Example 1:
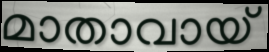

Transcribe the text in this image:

മാതാവായ്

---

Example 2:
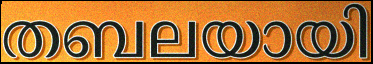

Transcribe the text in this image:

തബലയായി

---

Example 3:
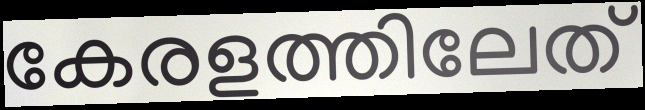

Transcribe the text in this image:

കേരളത്തിലേത്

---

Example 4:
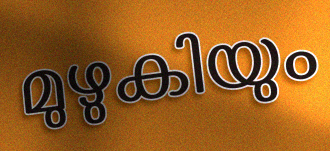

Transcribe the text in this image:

മുഴുകിയും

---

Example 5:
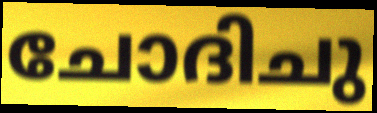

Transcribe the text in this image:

ചോദിചു